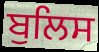
ਬੁਲਿਸ